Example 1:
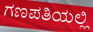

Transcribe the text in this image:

ಗಣಪತಿಯಲ್ಲಿ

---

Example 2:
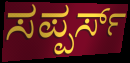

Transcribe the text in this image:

ಸಪ್ಪರ್ಸ್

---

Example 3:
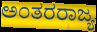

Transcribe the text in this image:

ಅಂತರರಾಜ್ಯ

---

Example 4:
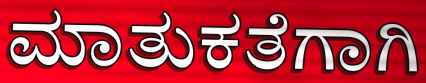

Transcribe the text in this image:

ಮಾತುಕತೆಗಾಗಿ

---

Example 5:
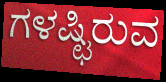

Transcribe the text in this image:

ಗಳಷ್ಟಿರುವ